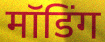
मॉडिंग